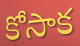
కోసాక